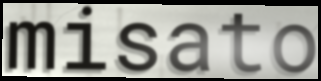
misato